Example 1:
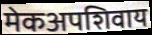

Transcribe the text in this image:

मेकअपशिवाय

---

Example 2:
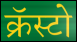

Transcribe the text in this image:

क्रॅस्टो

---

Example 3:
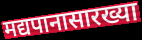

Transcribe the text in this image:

मद्यपानासारख्या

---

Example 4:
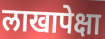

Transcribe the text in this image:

लाखापेक्षा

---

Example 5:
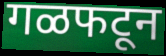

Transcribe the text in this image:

गळफटून